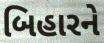
બિહારને